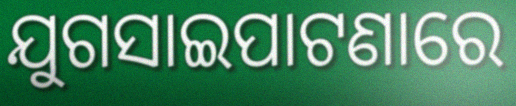
ଯୁଗସାଇପାଟଣାରେ